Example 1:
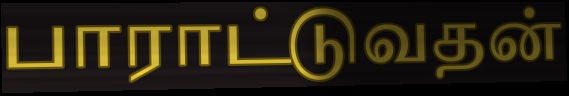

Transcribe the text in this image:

பாராட்டுவதன்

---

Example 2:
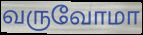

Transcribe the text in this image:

வருவோமா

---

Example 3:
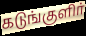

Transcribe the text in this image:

கடுங்குளிர்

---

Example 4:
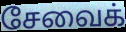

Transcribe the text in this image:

சேவைக்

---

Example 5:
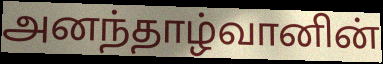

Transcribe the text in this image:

அனந்தாழ்வானின்